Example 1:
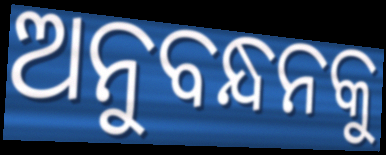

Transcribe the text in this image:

ଅନୁବନ୍ଧନକୁ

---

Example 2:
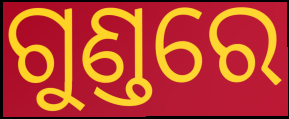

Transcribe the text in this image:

ଗୁଣ୍ଡରେ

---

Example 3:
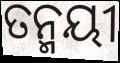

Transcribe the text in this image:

ତନ୍ମୟୀ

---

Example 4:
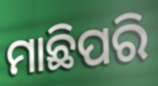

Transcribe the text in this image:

ମାଛିପରି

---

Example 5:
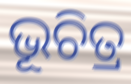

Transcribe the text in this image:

ଭୂଚିତ୍ର